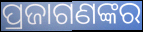
ପ୍ରଜାଗଣଙ୍କର